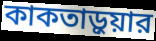
কাকতাড়ুয়ার